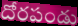
దోరపండు